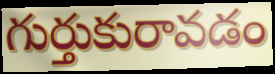
గుర్తుకురావడం